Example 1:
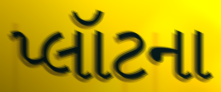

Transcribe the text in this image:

પ્લૉટના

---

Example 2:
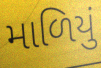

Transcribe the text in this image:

માળિયું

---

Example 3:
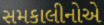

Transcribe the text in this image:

સમકાલીનોએ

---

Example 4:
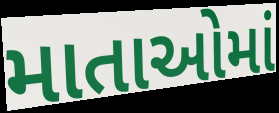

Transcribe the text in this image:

માતાઓમાં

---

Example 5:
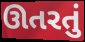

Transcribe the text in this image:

ઊતરતું